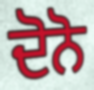
ਦੋਨੋ